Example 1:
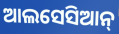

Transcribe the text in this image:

ଆଲସେସିଆନ୍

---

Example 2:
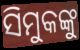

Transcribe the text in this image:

ସିମୁକଙ୍କୁ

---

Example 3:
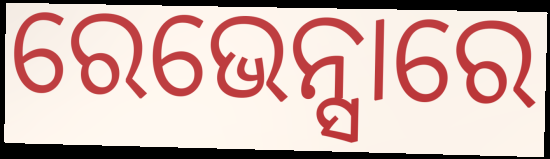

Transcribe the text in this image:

ରେଭେନ୍ସାରେ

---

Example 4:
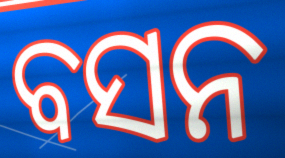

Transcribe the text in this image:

ବସନ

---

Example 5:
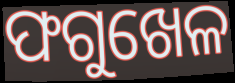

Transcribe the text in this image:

ଫଗୁଖେଳ